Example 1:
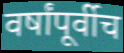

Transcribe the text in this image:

वर्षांपूर्वीच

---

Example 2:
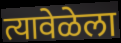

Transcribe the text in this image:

त्यावेळेला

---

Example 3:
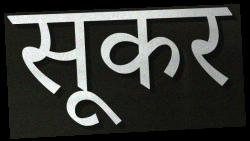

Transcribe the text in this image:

सूकर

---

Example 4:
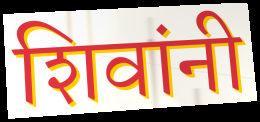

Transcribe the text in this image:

शिवांनी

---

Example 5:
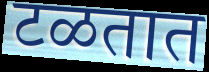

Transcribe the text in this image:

टळतात